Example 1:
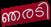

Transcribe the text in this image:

ഞരടി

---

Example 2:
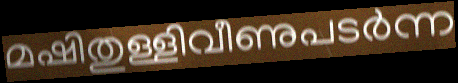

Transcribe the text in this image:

മഷിതുള്ളിവീണുപടർന്ന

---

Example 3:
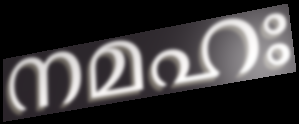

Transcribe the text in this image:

നമഹഃ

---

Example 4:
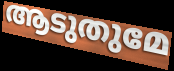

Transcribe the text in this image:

ആടുതുമേ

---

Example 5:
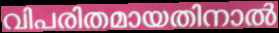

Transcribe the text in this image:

വിപരിതമായതിനാൽ